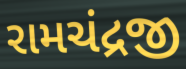
રામચંદ્રજી